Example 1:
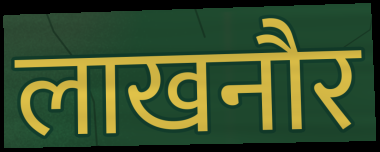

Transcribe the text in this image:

लाखनौर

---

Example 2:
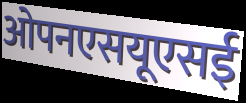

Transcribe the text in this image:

ओपनएसयूएसई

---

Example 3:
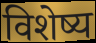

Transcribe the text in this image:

विशेष्य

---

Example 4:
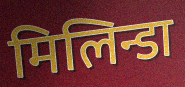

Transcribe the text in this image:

मिलिन्डा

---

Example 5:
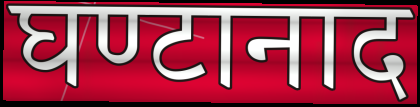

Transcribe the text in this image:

घण्टानाद